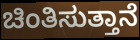
ಚಿಂತಿಸುತ್ತಾನೆ